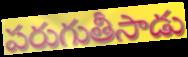
పరుగుతీసాడు